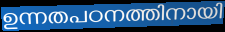
ഉന്നതപഠനത്തിനായി